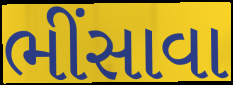
ભીંસાવા